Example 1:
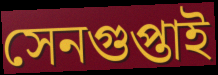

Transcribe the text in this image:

সেনগুপ্তাই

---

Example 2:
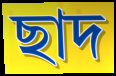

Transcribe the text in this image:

ছাদ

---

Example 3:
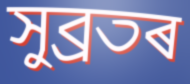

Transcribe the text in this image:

সুব্ৰতৰ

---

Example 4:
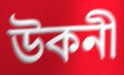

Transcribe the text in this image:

উকনী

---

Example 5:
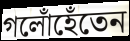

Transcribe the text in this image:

গলোঁহেঁতেন